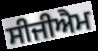
ਸੀਜੀਐਮ